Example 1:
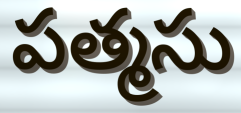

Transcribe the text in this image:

పత్మసు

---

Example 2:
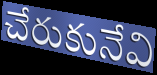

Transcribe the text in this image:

చేరుకునేవి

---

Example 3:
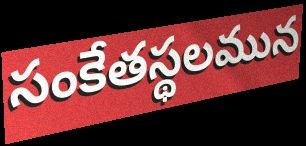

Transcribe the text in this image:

సంకేతస్థలమున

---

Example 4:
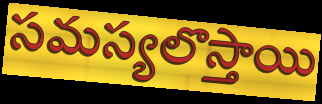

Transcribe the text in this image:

సమస్యలొస్తాయి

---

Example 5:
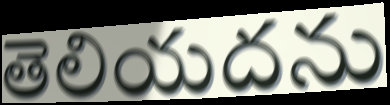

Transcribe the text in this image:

తెలియదను